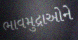
ભાવમુદ્રાઓને